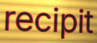
recipit